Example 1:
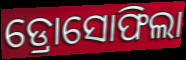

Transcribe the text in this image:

ଡ୍ରୋସୋଫିଲା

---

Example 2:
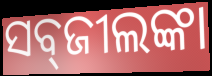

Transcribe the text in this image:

ସବ୍‌ଜୀଲଙ୍କା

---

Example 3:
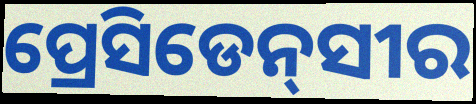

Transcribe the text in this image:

ପ୍ରେସିଡେନ୍‌ସୀର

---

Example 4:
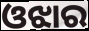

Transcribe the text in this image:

ଓଝାର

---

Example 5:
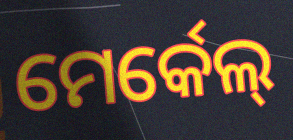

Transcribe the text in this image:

ମେର୍କେଲ୍